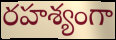
రహశ్యంగా